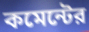
কমেন্টের